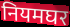
नियमघर